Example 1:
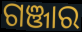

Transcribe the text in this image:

ଗଞ୍ଜାର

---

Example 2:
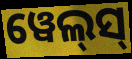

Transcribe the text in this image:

ୱେଲ୍‌ସ୍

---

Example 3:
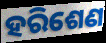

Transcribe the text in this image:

ହରିଶେଣ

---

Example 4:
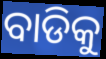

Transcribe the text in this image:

ବାଡିକୁ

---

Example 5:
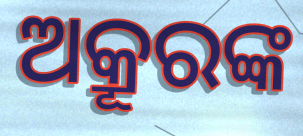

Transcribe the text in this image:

ଅକ୍ରୂରଙ୍କ